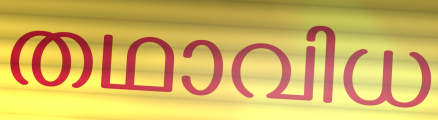
തഥാവിധ